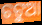
ଚଟୁଆ